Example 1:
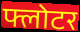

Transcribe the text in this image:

फ्लोटर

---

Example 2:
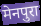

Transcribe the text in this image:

मेनपुरा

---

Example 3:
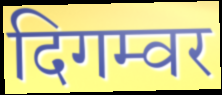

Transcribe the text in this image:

दिगम्वर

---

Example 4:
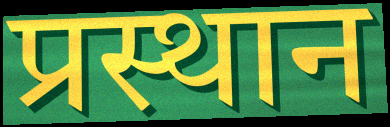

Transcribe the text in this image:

प्रस्थान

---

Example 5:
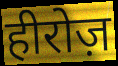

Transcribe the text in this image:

हीरोज़